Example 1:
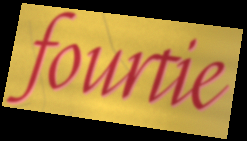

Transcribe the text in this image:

fourtie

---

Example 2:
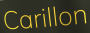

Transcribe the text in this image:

Carillon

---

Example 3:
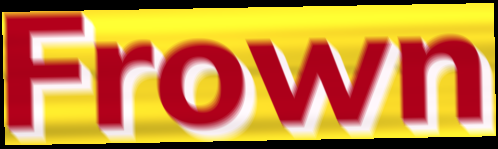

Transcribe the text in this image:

Frown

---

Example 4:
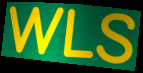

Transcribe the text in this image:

WLS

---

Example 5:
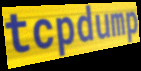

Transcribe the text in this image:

tcpdump